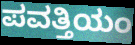
ಪವತ್ತಿಯಂ